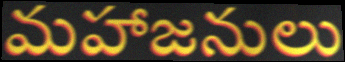
మహాజనులు